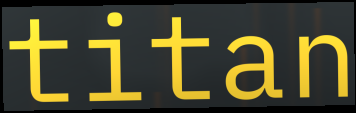
titan